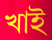
খাই